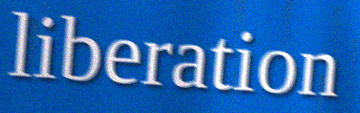
liberation